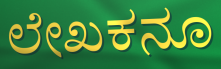
ಲೇಖಕನೂ